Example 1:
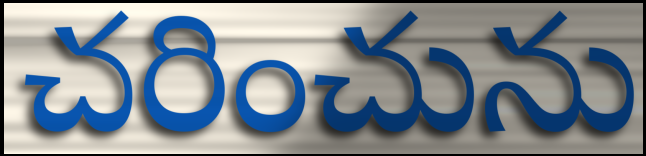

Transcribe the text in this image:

చరించును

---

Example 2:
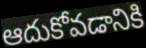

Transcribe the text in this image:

ఆదుకోవడానికి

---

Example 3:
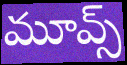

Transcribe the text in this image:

మూవ్స్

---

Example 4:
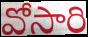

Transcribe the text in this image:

వోసారి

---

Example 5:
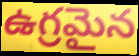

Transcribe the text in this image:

ఉగ్రమైన